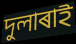
দুলাৰাই